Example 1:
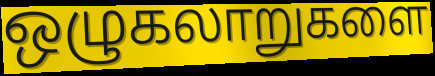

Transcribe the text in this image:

ஒழுகலாறுகளை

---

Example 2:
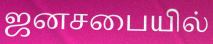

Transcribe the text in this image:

ஜனசபையில்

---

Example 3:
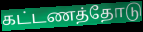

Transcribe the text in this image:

கட்டணத்தோடு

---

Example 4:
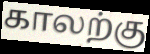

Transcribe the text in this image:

காலற்கு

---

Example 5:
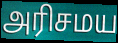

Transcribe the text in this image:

அரிசமய